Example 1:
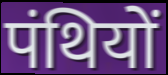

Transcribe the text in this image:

पंथियों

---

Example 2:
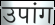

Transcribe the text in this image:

उपांग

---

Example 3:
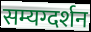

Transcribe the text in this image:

सम्‍यग्‍दर्शन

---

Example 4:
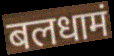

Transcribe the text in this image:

बलधामं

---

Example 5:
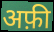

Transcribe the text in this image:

अफ़ी